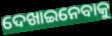
ଦେଖାଇନେବାକୁ